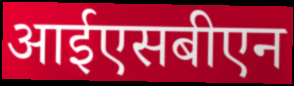
आईएसबीएन